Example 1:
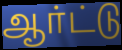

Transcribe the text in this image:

ஆர்ட்டு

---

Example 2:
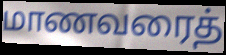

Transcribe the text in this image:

மாணவரைத்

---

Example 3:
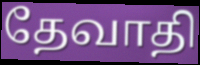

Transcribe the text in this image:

தேவாதி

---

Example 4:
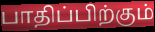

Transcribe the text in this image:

பாதிப்பிற்கும்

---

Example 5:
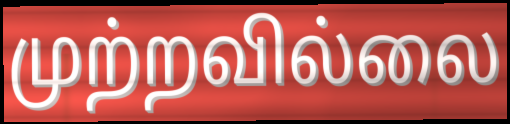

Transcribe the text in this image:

முற்றவில்லை